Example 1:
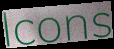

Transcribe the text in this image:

Icons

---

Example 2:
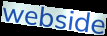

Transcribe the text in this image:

webside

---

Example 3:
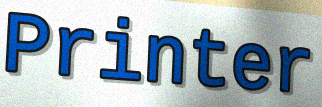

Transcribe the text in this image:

Printer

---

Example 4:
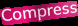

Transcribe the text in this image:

Compress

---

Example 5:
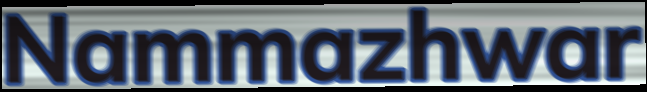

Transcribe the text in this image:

Nammazhwar